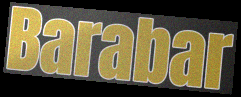
Barabar